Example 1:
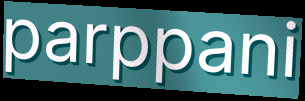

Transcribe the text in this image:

parppani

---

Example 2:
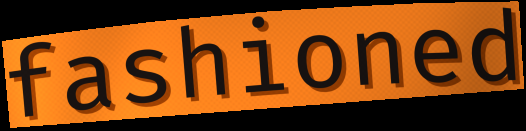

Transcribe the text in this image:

fashioned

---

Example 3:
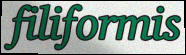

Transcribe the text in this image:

filiformis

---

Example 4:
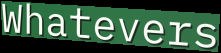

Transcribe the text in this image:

Whatevers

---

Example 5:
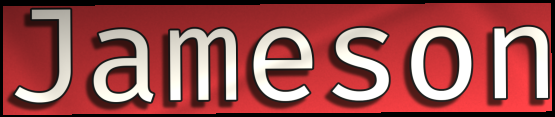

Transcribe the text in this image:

Jameson